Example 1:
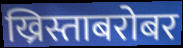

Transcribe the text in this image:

ख्रिस्ताबरोबर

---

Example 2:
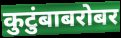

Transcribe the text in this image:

कुटुंबाबरोबर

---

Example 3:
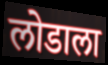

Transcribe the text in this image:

लोडाला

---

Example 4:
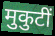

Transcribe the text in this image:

मुकुटीं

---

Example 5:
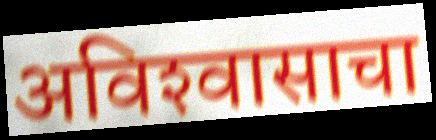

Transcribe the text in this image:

अविश्वासाचा